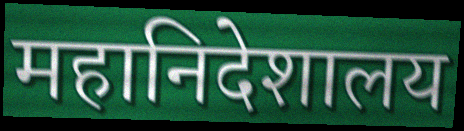
महानिदेशालय